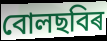
বোলছবিৰ